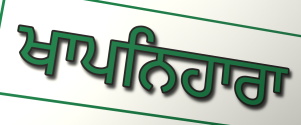
ਖਾਪਨਿਹਾਰਾ